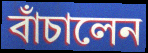
বাঁচালেন